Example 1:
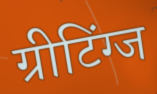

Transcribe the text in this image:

ग्रीटिंग्ज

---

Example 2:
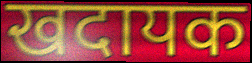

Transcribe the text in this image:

खदायक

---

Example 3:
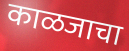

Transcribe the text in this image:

काळजाचा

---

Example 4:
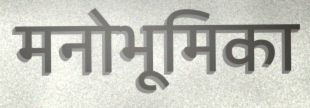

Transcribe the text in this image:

मनोभूमिका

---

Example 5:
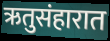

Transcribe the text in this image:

ऋतुसंहारात